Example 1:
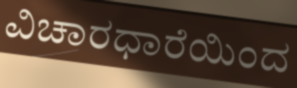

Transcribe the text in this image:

ವಿಚಾರಧಾರೆಯಿಂದ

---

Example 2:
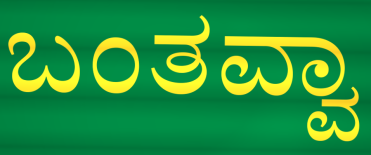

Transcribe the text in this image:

ಬಂತವ್ವಾ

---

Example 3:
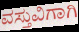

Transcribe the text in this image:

ವಸ್ತುವಿಗಾಗಿ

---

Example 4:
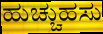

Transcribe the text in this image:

ಹುಚ್ಚುಹಸು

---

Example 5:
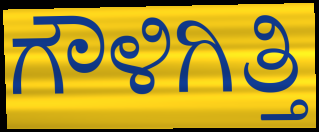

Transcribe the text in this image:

ಗೌಳಿಗಿತ್ತಿ